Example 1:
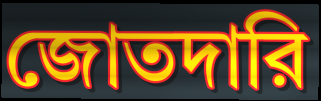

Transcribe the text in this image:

জোতদারি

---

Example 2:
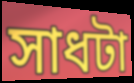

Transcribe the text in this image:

সাধটা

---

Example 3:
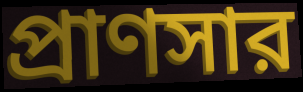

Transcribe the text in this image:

প্রাণসার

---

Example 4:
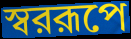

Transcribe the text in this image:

স্বররূপে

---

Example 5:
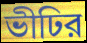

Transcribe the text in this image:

ভীঢির